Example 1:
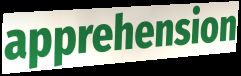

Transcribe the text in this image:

apprehension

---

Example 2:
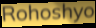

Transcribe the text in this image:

Rohoshyo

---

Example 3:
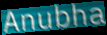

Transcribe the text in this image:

Anubha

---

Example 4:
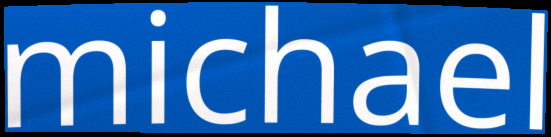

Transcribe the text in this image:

michael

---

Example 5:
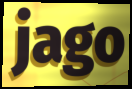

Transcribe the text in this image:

jago